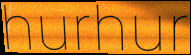
hurhur